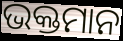
ଭକ୍ତମାନ